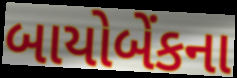
બાયોબેંકના